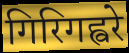
गिरिगह्वरे